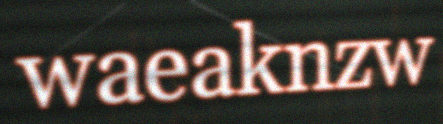
waeaknzw